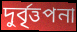
দুর্বৃত্তপনা